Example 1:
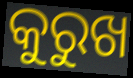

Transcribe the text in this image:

କୁରୁଖ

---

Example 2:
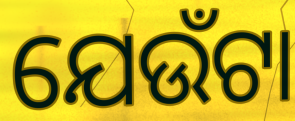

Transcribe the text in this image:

ଯେଉଁଟା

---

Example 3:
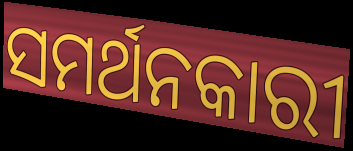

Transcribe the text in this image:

ସମର୍ଥନକାରୀ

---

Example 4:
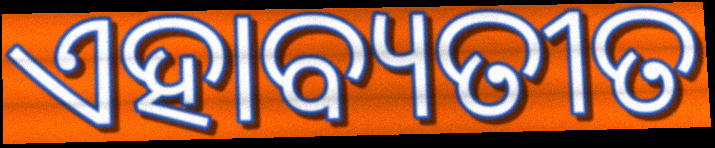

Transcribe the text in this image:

ଏହାବ୍ୟତୀତ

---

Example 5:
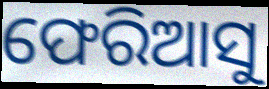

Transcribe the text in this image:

ଫେରିଆସୁ